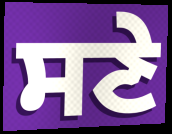
ਸਣੇ